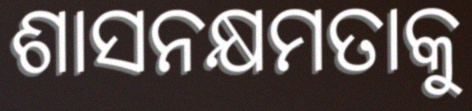
ଶାସନକ୍ଷମତାକୁ